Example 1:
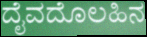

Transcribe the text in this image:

ದೈವದೊಲಹಿನ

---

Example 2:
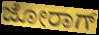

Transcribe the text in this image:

ಜೋರಾಗ್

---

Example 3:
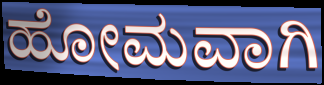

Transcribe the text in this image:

ಹೋಮವಾಗಿ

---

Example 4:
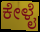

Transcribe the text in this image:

ಕೇಳೈ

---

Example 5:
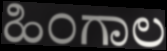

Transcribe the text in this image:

ಹಿಂಗಾಲ